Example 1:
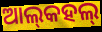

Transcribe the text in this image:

ଆଲ୍‌କହଲ୍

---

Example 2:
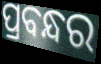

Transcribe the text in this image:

ପ୍ରବନ୍ଧର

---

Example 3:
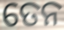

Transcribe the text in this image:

ତେନ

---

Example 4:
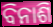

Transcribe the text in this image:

ବିନାଶି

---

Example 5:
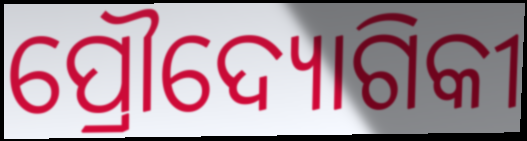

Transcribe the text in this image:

ପ୍ରୌଦ୍ୟୋଗିକୀ